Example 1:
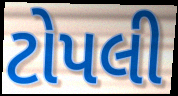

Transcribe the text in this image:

ટોપલી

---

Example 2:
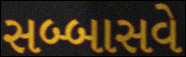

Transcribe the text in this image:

સબ્બાસવે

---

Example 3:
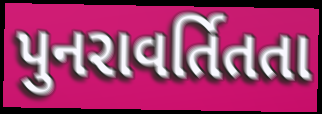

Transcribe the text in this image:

પુનરાવર્તિતતા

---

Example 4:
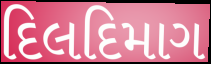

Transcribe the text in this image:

દિલદિમાગ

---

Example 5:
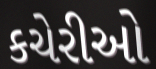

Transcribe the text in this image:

કચેરીઓ